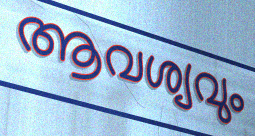
ആവശ്യവും